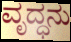
ವೃದ್ಧನು